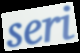
seri